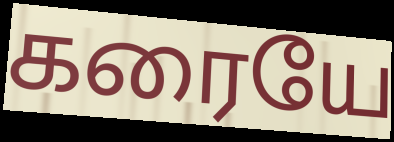
கரையே